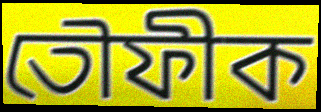
তৌফীক